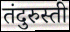
तंदुरुस्ती